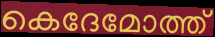
കെദേമോത്ത്